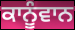
ਕਾਨੂੰਵਾਨ